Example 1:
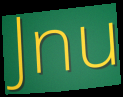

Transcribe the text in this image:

Jnu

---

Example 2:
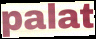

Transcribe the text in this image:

palat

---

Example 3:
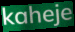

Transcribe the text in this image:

kaheje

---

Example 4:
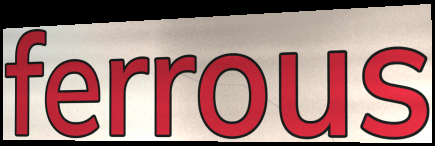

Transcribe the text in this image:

ferrous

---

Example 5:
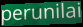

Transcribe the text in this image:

perunilai